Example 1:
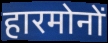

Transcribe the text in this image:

हारमोनों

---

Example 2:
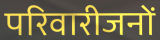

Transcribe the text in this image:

परिवारीजनों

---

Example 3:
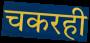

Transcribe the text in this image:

चकरही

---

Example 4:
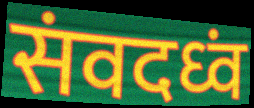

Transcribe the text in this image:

संवदध्वं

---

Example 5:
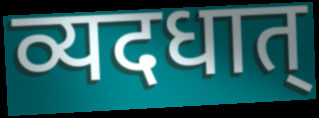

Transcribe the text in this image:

व्यदधात्